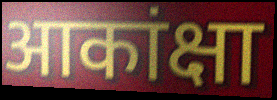
आकांक्षा